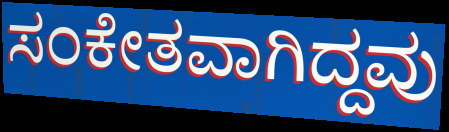
ಸಂಕೇತವಾಗಿದ್ದವು